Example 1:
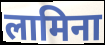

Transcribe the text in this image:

लामिना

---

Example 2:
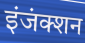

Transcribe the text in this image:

इंजंक्शन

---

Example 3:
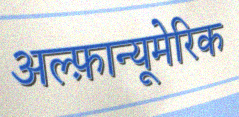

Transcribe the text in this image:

अल्फ़ान्यूमेरिक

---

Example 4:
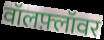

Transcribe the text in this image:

वॉलफ़्लॉवर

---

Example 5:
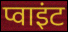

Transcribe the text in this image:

प्‍वाइंट